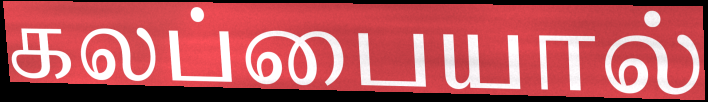
கலப்பையால்